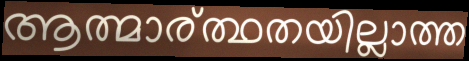
ആത്മാര്ത്ഥതയില്ലാത്ത